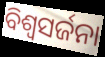
ବିଶ୍ଵସର୍ଜନା